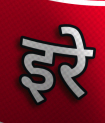
इरे